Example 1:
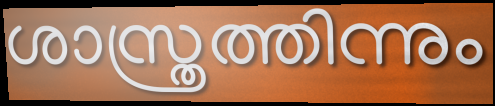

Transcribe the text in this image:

ശാസ്ത്രത്തിന്നും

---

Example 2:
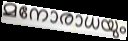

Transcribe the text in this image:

മനോരാധയും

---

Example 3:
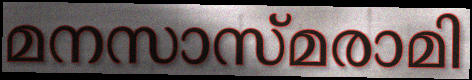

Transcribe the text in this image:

മനസാസ്മരാമി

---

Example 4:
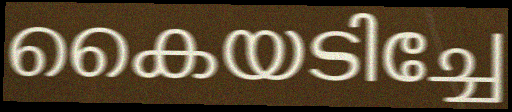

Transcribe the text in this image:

കൈയടിച്ചേ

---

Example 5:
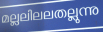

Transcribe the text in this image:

മല്ലലിലലതല്ലുന്നു